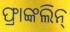
ଫ୍ରାଙ୍କଲିନ୍